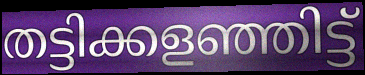
തട്ടിക്കളഞ്ഞിട്ട്